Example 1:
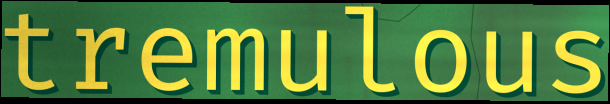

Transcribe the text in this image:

tremulous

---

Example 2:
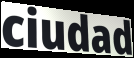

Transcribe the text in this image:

ciudad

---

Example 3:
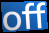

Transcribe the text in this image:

off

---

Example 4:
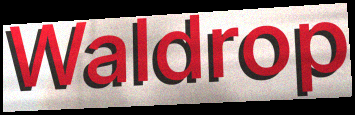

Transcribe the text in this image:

Waldrop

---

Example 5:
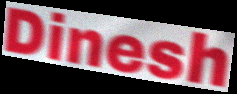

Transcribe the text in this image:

Dinesh